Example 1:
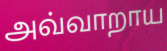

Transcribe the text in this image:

அவ்வாறாய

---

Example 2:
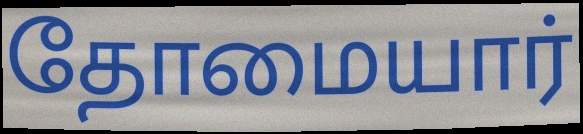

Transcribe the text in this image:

தோமையார்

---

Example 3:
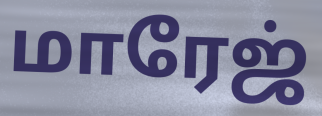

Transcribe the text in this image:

மாரேஜ்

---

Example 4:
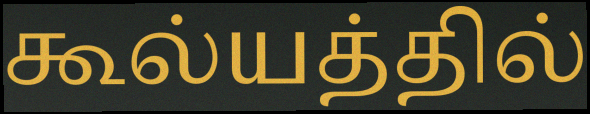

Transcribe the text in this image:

கூல்யத்தில்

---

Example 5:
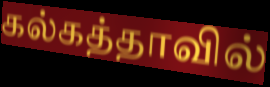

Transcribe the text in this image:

கல்கத்தாவில்